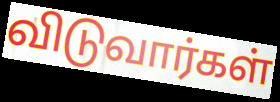
விடுவார்கள்